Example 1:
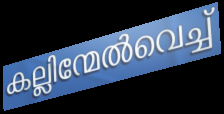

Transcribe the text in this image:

കല്ലിന്മേൽവെച്ച്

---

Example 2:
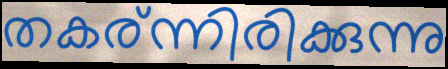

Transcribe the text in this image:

തകര്ന്നിരിക്കുന്നു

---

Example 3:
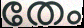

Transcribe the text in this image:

തേം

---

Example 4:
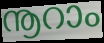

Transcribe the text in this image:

നൂറാം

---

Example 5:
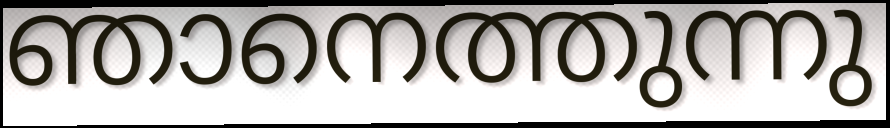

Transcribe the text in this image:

ഞാനെത്തുന്നു